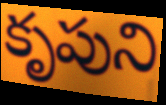
కృపుని